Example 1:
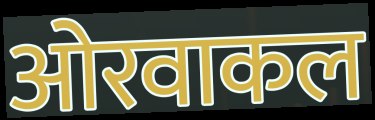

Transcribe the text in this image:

ओरवाकल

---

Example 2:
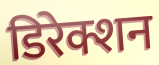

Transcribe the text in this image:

डिरेक्शन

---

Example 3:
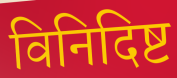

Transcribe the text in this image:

विनिदिष्ट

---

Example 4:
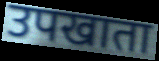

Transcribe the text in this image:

उपखाता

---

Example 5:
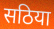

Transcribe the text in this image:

सठिया